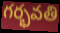
గర్భవతి